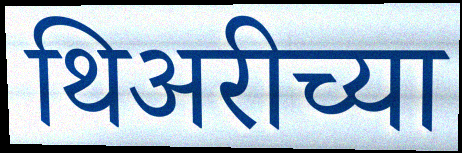
थिअरीच्या